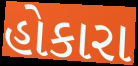
હોકારા